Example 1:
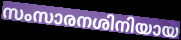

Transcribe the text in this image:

സംസാരനശിനിയായ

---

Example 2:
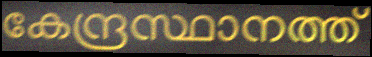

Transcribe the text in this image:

കേന്ദ്രസ്ഥാനത്ത്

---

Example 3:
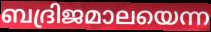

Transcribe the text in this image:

ബദ്രിജമാലയെന്ന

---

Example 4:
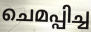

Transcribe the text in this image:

ചെമപ്പിച്ച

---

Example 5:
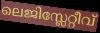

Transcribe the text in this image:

ലെജിസ്ലേറ്റീവ്